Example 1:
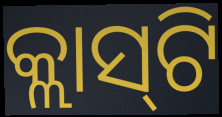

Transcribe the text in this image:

କ୍ଲାସ୍‌ଟି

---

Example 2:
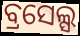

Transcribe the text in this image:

ବ୍ରସେଲ୍ସ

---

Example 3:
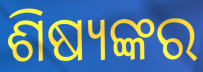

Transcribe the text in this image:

ଶିଷ୍ୟଙ୍କର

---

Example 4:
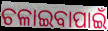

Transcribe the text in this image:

ଚଳାଇବାପାଇଁ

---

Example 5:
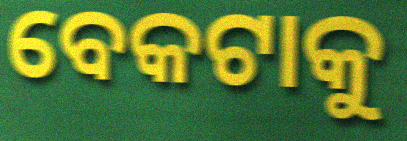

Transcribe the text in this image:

ବେକଟାକୁ